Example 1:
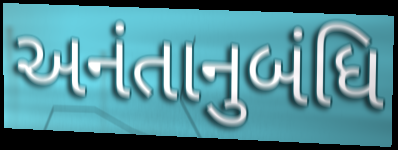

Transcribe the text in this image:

અનંતાનુબંધિ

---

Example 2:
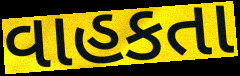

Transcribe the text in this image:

વાહકતા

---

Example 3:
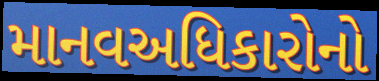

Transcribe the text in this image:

માનવઅધિકારોનો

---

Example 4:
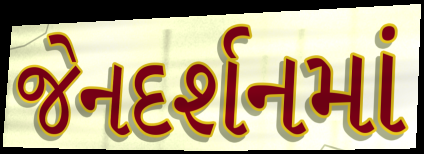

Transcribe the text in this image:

જેનદર્શનમાં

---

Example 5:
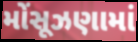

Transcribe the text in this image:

મોંસૂઝણામાં